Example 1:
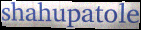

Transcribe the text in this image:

shahupatole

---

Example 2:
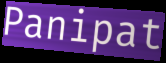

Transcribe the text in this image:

Panipat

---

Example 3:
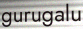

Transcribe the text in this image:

gurugalu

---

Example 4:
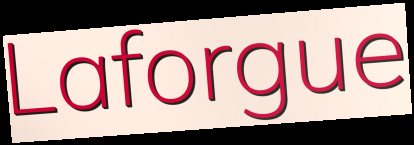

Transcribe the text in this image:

Laforgue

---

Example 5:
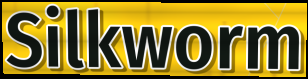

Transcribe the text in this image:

Silkworm